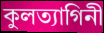
কুলত্যাগিনী